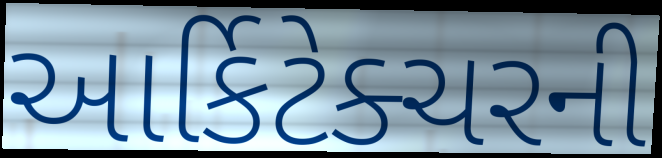
આર્કિટેક્ચરની